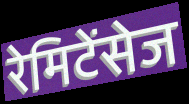
रेमिटेंसेज